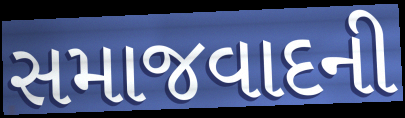
સમાજવાદની